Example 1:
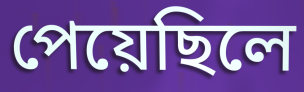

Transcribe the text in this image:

পেয়েছিলে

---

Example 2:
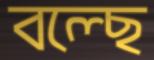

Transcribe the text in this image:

বল্ছে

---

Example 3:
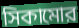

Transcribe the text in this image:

সিকামোর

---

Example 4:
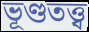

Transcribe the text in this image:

ভূণ্ডতত্ত্ব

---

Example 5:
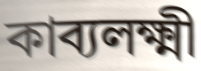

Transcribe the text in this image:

কাব্যলক্ষ্মী